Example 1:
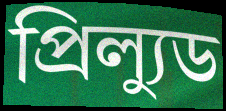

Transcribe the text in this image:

প্রিল্যুড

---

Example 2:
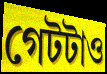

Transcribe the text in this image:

গেটটাও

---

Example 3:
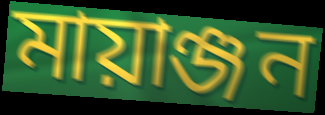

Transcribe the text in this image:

মায়াঞ্জন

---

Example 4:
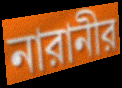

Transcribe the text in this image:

নারানীর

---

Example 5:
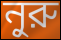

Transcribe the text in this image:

নুরু